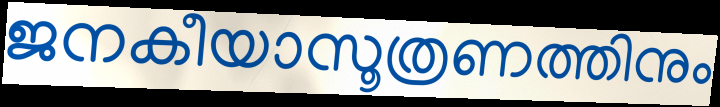
ജനകീയാസൂത്രണത്തിനും